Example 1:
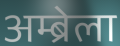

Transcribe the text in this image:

अम्‍ब्रेला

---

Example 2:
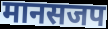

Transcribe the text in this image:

मानसजप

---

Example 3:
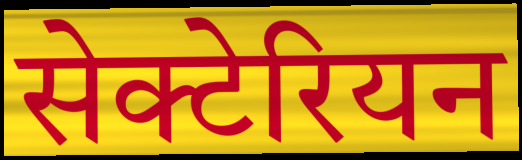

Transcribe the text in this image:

सेक्टेरियन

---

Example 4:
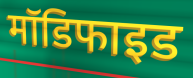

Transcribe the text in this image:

मॉडिफाइड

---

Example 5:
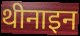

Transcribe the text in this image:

थीनाइन